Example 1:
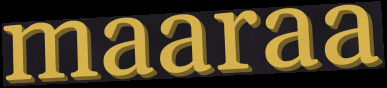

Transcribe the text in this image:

maaraa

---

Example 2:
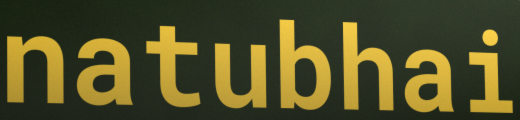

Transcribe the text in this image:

natubhai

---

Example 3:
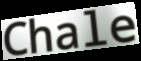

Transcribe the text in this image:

Chale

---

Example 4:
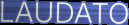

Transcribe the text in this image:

LAUDATO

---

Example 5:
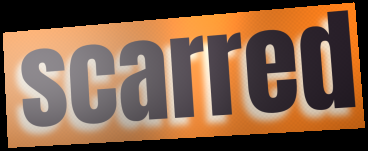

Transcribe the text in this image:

scarred